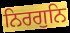
ਨਿਰਗੁਨਿ